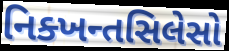
નિક્ખન્તસિલેસો